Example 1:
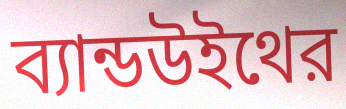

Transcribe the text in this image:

ব্যান্ডউইথের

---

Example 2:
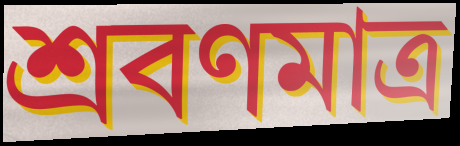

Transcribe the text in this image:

শ্রবণমাত্র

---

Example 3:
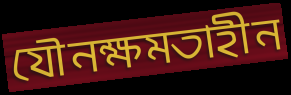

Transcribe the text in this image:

যৌনক্ষমতাহীন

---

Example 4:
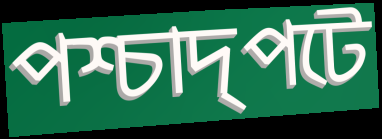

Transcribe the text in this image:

পশ্চাদ্‌পটে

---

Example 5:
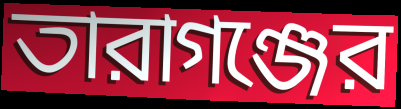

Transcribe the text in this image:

তারাগঞ্জের